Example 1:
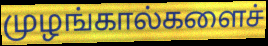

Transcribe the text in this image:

முழங்கால்களைச்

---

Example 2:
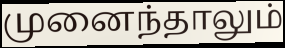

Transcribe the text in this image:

முனைந்தாலும்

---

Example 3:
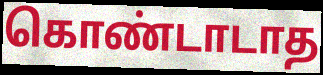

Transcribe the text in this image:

கொண்டாடாத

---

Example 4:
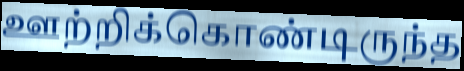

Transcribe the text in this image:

ஊற்றிக்கொண்டிருந்த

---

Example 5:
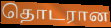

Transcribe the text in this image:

தொடரான